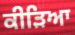
ਕੀੜਿਆ